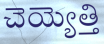
చెయ్యెత్తి